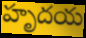
హృదయ